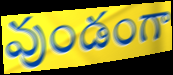
వుండంగా